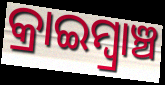
କ୍ରାଇମ୍ବ୍ରାଞ୍ଚ